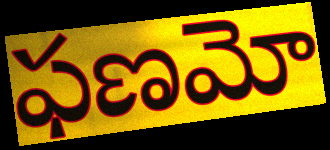
ఫణమో